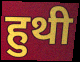
हुथी